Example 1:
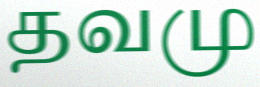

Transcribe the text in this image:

தவமு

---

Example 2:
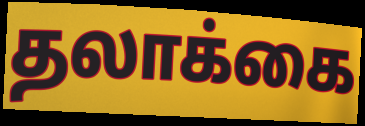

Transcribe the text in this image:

தலாக்கை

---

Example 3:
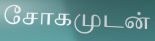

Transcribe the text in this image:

சோகமுடன்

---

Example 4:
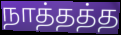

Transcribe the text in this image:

நாத்தத்த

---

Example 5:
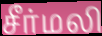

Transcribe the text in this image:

சீர்மலி